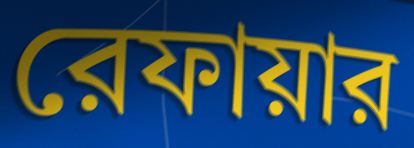
রেফায়ার